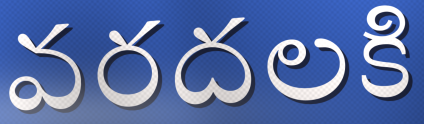
వరదలకి